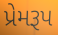
પ્રેમરૂપ